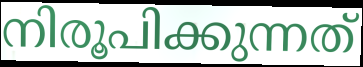
നിരൂപിക്കുന്നത്